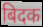
बिदक